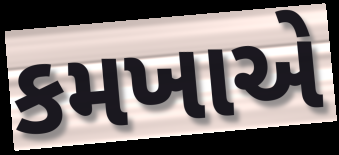
કમખાએ